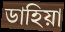
ডাহিয়া